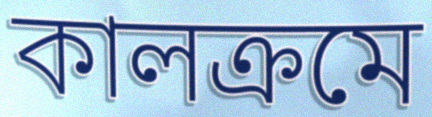
কালক্রমে